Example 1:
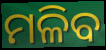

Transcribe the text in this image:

ମଳିବ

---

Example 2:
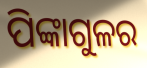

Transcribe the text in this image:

ପିଙ୍କାଗୁଳର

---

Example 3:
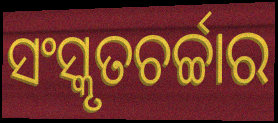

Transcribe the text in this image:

ସଂସ୍କୃତଚର୍ଚ୍ଚାର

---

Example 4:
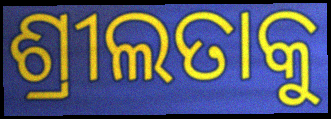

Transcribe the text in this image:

ଶ୍ରୀଲତାକୁ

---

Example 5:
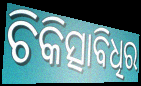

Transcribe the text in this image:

ଚିକିତ୍ସାବିଧିର